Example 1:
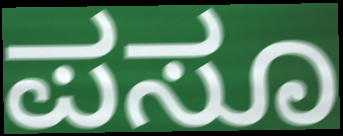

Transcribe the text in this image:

ಪಸೂ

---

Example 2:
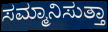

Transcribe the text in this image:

ಸಮ್ಮಾನಿಸುತ್ತಾ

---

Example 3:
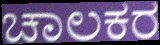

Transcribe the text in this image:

ಚಾಲಕರ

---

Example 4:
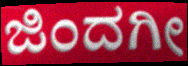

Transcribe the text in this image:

ಜಿಂದಗೀ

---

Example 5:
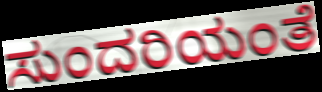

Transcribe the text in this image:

ಸುಂದರಿಯಂತೆ